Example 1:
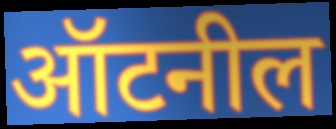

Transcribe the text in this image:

ऑटनील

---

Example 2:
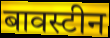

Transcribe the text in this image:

बावस्टीन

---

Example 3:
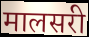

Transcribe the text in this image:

मालसरी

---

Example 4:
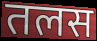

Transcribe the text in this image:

तलस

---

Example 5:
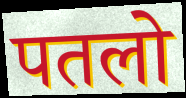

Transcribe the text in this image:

पतलो